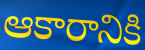
ఆకారానికి